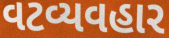
વટવ્યવહાર